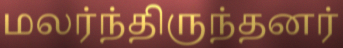
மலர்ந்திருந்தனர்